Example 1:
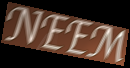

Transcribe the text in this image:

NEEM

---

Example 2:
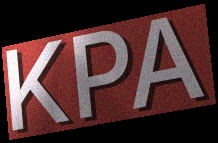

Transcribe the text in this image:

KPA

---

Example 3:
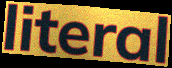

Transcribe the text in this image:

literal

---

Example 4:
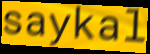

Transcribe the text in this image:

saykal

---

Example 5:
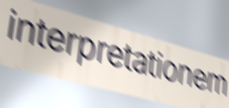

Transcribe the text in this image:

interpretationem